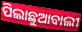
ପିଲାଛୁଆବାଲୀ